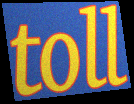
toll